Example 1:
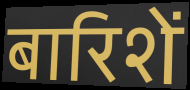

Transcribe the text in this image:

बारिशें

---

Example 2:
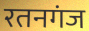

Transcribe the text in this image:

रतनगंज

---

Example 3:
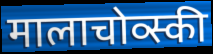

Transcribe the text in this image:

मालाचोव्स्की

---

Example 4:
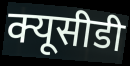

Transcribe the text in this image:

क्यूसीडी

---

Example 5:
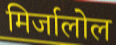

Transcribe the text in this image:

मिर्जालोल